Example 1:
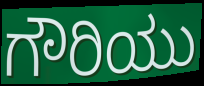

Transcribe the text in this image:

ಗೌರಿಯು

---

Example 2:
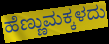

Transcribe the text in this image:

ಹೆಣ್ಣುಮಕ್ಕಳದು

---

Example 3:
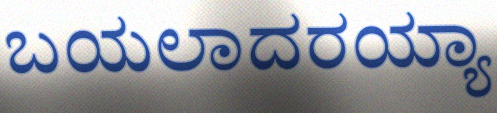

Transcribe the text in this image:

ಬಯಲಾದರಯ್ಯಾ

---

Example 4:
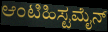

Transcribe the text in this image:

ಆಂಟಿಹಿಸ್ಟಮೈನ್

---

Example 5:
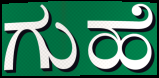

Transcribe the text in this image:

ಗುಹೆ